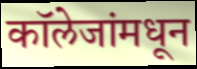
कॉलेजांमधून